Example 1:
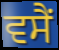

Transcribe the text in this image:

ਵਸੈਂ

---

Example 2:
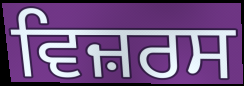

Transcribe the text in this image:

ਵਿਜ਼ਰਸ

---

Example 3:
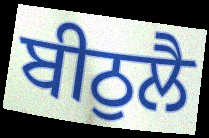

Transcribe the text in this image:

ਬੀਠੁਲੈ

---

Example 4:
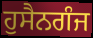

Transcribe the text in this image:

ਹੁਸੈਨਗੰਜ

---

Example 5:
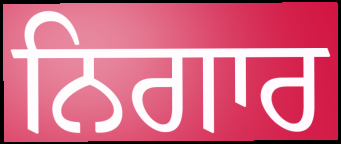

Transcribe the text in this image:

ਨਿਗਾਰ